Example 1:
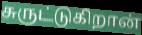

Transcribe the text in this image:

சுருட்டுகிறான்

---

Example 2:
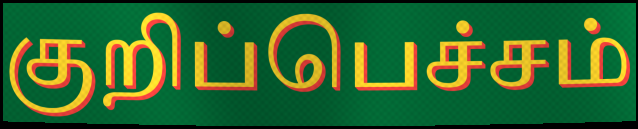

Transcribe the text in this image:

குறிப்பெச்சம்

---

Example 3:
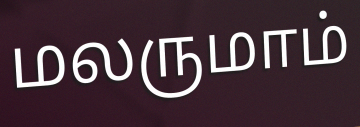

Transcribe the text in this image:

மலருமாம்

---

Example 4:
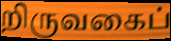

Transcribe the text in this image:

றிருவகைப்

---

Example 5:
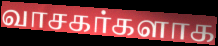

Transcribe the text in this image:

வாசகர்களாக